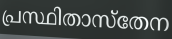
പ്രസ്ഥിതാസ്തേന